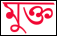
মুক্ত